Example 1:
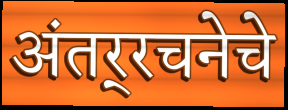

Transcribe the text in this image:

अंतर्रचनेचे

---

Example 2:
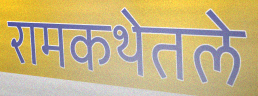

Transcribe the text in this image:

रामकथेतले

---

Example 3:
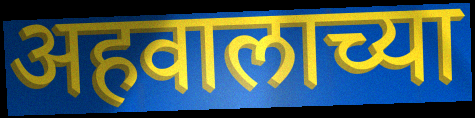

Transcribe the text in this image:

अहवालाच्या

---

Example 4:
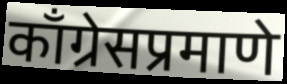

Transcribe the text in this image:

काँग्रेसप्रमाणे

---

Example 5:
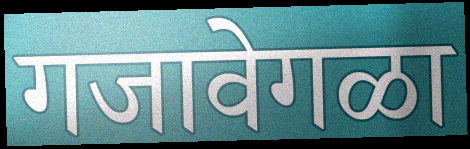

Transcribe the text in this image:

गजावेगळा